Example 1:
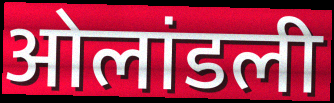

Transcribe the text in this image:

ओलांडली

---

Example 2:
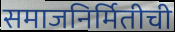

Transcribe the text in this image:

समाजनिर्मितीची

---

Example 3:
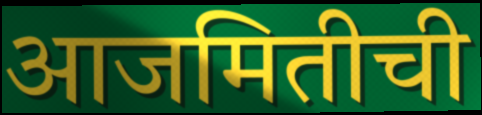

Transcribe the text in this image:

आजमितीची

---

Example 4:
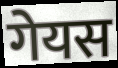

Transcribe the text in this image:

गेयस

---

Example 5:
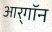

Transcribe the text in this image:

आर्‌गॉन